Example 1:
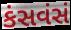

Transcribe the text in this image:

કંસવંસં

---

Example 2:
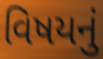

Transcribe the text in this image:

વિષયનું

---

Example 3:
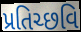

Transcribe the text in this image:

પ્રતિચ્છવિ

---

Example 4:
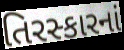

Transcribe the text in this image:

તિરસ્કારનાં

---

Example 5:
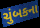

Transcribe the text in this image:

ચુંબકના